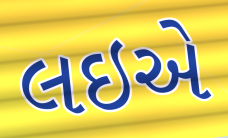
લઇએ